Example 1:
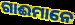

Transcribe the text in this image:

ଗାଈମାନେ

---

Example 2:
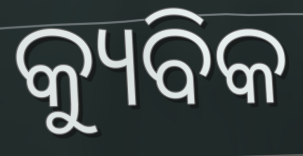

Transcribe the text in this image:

କ୍ୟୁବିକ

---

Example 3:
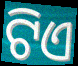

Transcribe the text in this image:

ଟିଏ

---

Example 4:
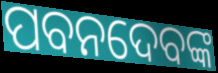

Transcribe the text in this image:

ପବନଦେବଙ୍କ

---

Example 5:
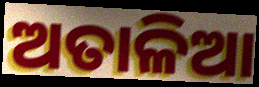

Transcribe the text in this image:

ଅତାଳିଆ